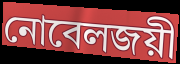
নোবেলজয়ী